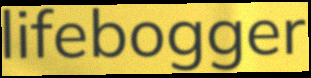
lifebogger